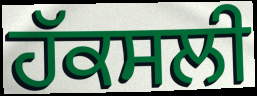
ਹੱਕਸਲੀ